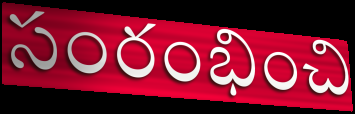
సంరంభించి